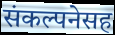
संकल्पनेसह